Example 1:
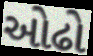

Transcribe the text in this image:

ઓઢો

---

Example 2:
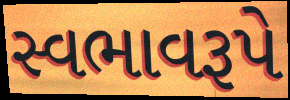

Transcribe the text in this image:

સ્વભાવરૂપે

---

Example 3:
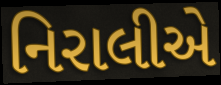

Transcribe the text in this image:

નિરાલીએ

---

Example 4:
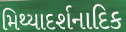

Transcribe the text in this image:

મિથ્યાદર્શનાદિક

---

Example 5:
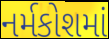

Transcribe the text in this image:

નર્મકોશમાં